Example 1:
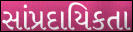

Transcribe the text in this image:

સાંપ્રદાયિકતા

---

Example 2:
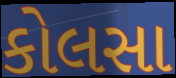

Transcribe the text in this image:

કોલસા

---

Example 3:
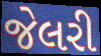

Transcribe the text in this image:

જેલરી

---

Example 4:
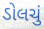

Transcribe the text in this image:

ડોલચું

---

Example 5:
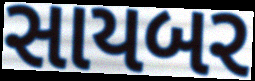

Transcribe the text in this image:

સાયબર